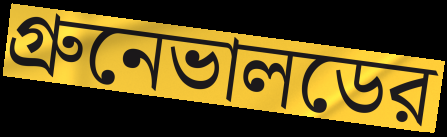
গ্রুনেভালডের